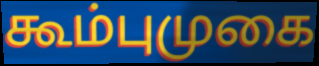
கூம்புமுகை